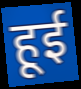
हूई